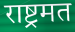
राष्ट्रमत